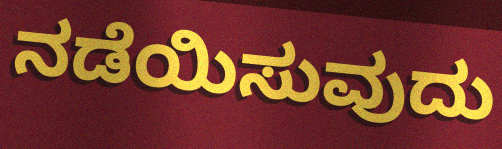
ನಡೆಯಿಸುವುದು